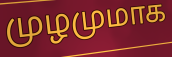
முழமுமாக